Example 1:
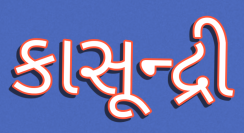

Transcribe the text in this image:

કાસૂન્દ્રી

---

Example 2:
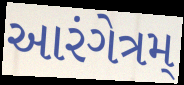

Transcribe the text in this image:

આરંગેત્રમ્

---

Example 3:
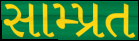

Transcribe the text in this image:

સામ્પ્રત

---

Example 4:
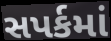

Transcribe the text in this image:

સપર્કમાં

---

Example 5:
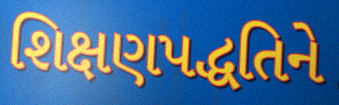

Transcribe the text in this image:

શિક્ષણપદ્ધતિને